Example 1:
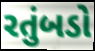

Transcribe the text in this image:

રતુંબડો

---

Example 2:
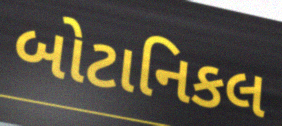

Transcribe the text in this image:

બોટાનિકલ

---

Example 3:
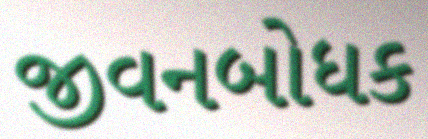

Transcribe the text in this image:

જીવનબોધક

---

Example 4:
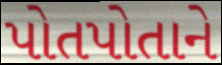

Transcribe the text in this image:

પોતપોતાને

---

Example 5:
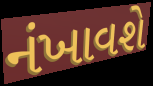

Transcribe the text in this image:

નંખાવશે